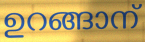
ഉറങ്ങാന്